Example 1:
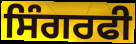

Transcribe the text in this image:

ਸਿੰਗਰਫੀ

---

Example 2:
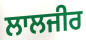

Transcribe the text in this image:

ਲਾਲਜੀਰ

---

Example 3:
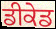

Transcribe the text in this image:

ਡੀਕੇਡ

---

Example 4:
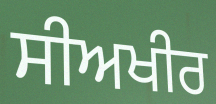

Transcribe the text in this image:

ਸੀਅਖੀਰ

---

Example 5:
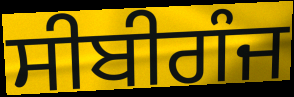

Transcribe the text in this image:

ਸੀਬੀਗੰਜ